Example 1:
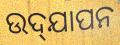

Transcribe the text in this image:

ଉଦ୍‌ଯାପନ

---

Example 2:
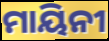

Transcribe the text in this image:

ମାୟିନୀ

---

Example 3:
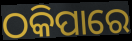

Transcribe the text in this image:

ଠକିପାରେ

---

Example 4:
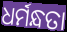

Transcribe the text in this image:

ଧର୍ମନ୍ଧତା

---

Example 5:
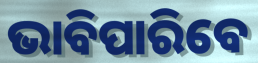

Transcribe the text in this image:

ଭାବିପାରିବେ